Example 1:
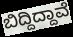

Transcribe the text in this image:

ಬಿದ್ದಿದ್ದಾವೆ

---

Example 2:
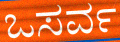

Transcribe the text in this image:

ಒಸರ್ವ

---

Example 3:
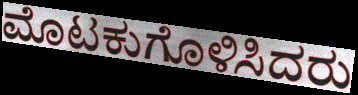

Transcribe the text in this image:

ಮೊಟಕುಗೊಳಿಸಿದರು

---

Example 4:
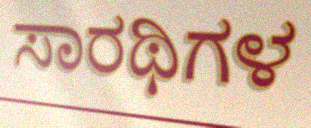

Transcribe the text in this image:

ಸಾರಥಿಗಳ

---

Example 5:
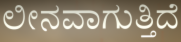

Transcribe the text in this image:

ಲೀನವಾಗುತ್ತಿದೆ